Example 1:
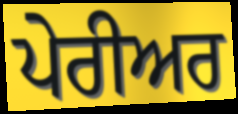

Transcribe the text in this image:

ਪੇਰੀਅਰ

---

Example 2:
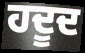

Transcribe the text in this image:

ਹਦੂਦ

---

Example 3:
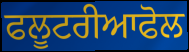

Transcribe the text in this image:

ਫਲੂਟਰੀਆਫੋਲ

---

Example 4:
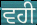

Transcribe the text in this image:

ਵਹੀ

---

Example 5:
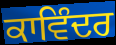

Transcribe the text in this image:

ਕਾਵਿੰਦਰ